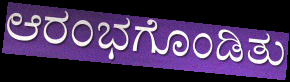
ಆರಂಭಗೊಂಡಿತು